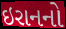
ઇરાનનો